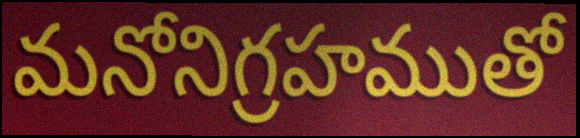
మనోనిగ్రహముతో